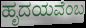
ಹೃದಯವೆಂಬ